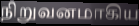
நிறுவனமாகிய